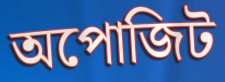
অপোজিট